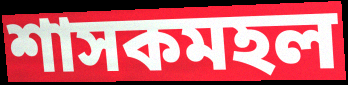
শাসকমহল